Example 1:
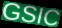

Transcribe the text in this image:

GSIC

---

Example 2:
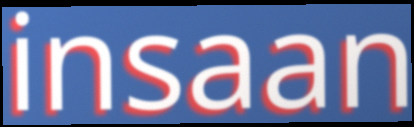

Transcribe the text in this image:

insaan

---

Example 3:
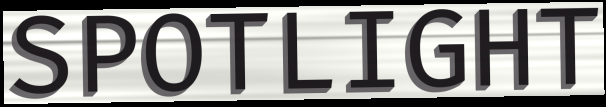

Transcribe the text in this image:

SPOTLIGHT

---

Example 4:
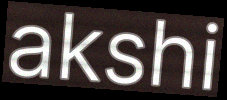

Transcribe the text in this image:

akshi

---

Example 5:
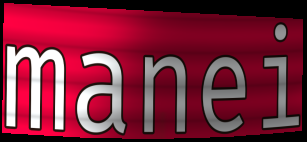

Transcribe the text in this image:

manei